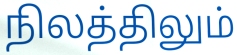
நிலத்திலும்